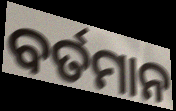
ବର୍ତମାନ